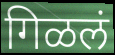
गिळलं